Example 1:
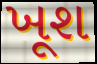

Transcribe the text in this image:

ખૂશ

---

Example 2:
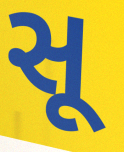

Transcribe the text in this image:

સૂ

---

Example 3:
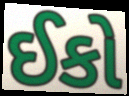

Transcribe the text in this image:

ઈકો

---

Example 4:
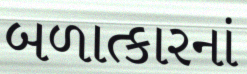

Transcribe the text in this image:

બળાત્કારનાં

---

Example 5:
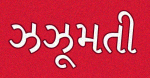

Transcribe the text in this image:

ઝઝૂમતી